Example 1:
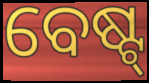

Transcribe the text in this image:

ବେଷ୍ଟ୍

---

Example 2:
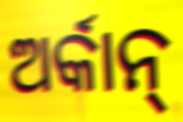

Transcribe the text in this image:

ଅର୍କାନ୍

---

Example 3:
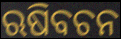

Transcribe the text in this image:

ଋଷିବଚନ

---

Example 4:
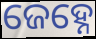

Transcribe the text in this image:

ଜେହ୍ନେ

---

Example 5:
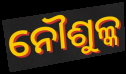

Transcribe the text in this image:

ନୌଶୁଳ୍କ